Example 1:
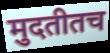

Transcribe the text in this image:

मुदतीतच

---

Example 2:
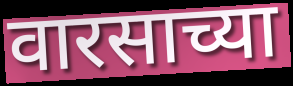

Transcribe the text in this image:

वारसाच्या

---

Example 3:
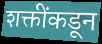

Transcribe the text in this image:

शक्तींकडून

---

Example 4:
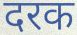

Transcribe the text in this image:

दरक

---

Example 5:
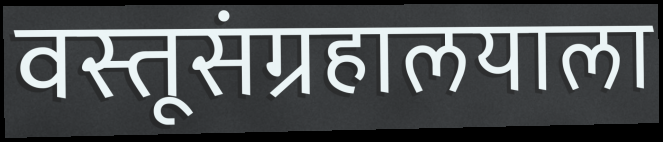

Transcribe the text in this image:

वस्तूसंग्रहालयाला